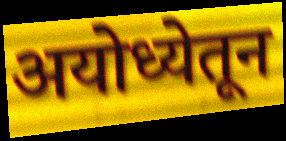
अयोध्येतून